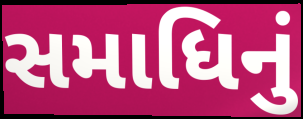
સમાધિનું